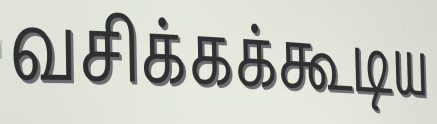
வசிக்கக்கூடிய